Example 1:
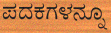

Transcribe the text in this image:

ಪದಕಗಳನ್ನೂ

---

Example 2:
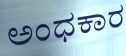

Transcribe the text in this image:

ಅಂಧಕಾರ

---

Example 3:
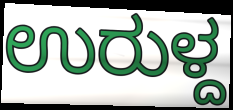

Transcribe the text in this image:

ಉರುಳ್ದ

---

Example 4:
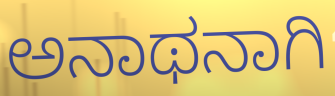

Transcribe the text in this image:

ಅನಾಥನಾಗಿ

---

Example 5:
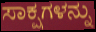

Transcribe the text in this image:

ಸಾಕ್ಷಗಳನ್ನು